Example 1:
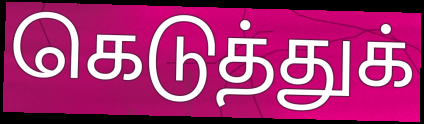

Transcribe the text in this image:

கெடுத்துக்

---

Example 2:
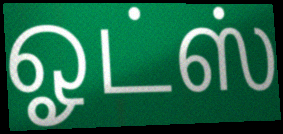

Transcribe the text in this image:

ஓட்ஸ்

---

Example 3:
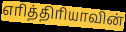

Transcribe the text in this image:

எரித்திரியாவின்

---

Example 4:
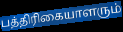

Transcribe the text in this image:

பத்திரிகையாளரும்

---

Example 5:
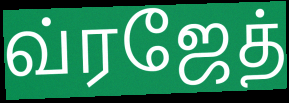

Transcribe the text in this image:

வ்ரஜேத்